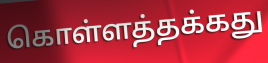
கொள்ளத்தக்கது